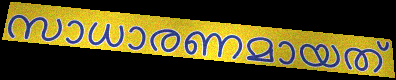
സാധാരണമായത്